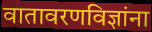
वातावरणविज्ञांना